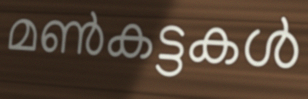
മൺകട്ടകൾ